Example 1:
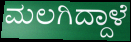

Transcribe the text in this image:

ಮಲಗಿದ್ದಾಳೆ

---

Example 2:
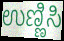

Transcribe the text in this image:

ಉಣ್ಣಿಸಿ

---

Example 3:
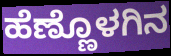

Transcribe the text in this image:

ಹೆಣ್ಣೊಳಗಿನ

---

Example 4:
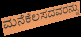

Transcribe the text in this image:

ಮನೆಕೆಲಸದವರನ್ನು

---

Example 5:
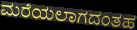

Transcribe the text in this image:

ಮರೆಯಲಾಗದಂತಹ